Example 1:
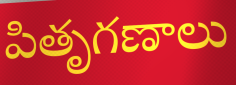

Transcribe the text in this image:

పితృగణాలు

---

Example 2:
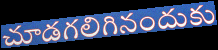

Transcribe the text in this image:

చూడగలిగినందుకు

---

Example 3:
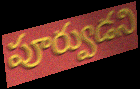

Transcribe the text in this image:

పూర్వుడని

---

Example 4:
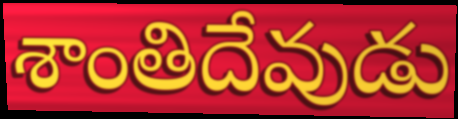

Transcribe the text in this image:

శాంతిదేవుడు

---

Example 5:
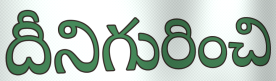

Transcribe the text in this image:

దీనిగురించి